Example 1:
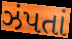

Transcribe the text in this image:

ઝંપતાં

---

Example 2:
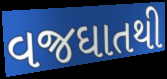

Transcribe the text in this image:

વજ્રઘાતથી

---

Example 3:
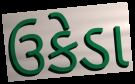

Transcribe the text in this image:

ઉકેડા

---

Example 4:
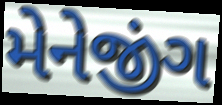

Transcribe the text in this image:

મેનેજીંગ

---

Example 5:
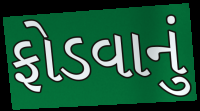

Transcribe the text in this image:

ફોડવાનું